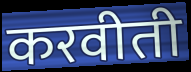
करवीती